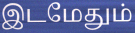
இடமேதும்